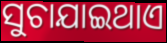
ସୁଚାଯାଇଥାଏ